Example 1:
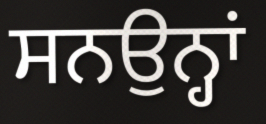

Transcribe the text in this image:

ਸਨਉਨ੍ਹਾਂ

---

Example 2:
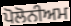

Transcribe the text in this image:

ਪੋਲੋਨੀਅਮ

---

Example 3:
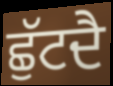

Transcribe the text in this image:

ਛੁੱਟਦੈ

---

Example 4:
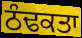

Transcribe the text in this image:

ਠੰਢਕਤਾ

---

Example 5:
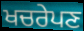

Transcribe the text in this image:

ਖਚਰੇਪਣ